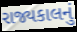
રાજ્યકાલનું